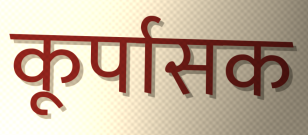
कूर्पासक